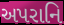
અપરાનિ